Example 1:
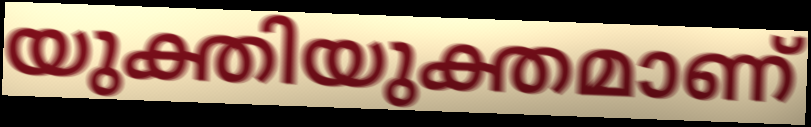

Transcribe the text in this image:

യുക്തിയുക്തമാണ്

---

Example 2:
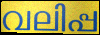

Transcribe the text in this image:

വലിപ്പ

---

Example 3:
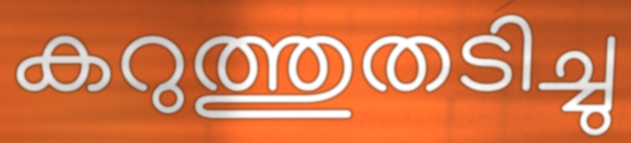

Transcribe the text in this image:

കറുത്തുതടിച്ചു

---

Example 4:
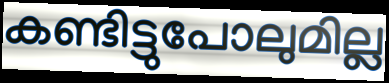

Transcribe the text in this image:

കണ്ടിട്ടുപോലുമില്ല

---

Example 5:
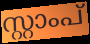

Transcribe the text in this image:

സ്റ്റാംപ്